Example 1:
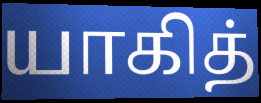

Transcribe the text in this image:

யாகித்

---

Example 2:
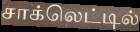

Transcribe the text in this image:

சாக்லெட்டில்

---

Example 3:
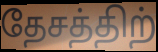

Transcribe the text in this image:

தேசத்திற்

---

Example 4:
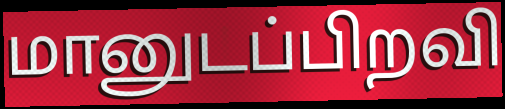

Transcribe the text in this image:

மானுடப்பிறவி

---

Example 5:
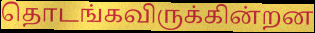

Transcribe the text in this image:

தொடங்கவிருக்கின்றன